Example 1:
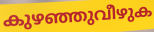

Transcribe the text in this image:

കുഴഞ്ഞുവീഴുക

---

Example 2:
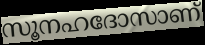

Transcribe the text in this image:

സൂനഹദോസാണ്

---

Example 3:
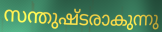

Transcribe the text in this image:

സന്തുഷ്ടരാകുന്നു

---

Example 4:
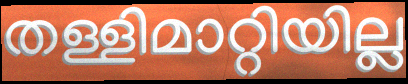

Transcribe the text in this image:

തള്ളിമാറ്റിയില്ല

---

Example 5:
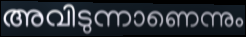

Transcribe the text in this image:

അവിടുന്നാണെന്നും